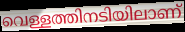
വെള്ളത്തിനടിയിലാണ്